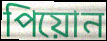
পিয়োন